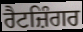
ਰੈਟਜ਼ਿੰਗਰ